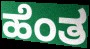
ಹೆಂತ